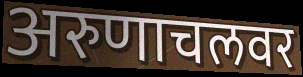
अरुणाचलवर